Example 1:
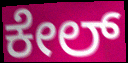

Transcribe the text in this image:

ಕೇಲ್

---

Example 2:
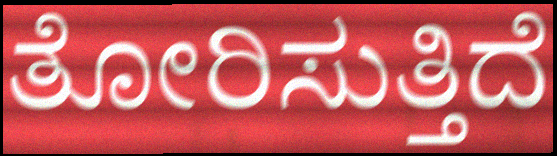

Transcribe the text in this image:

ತೋರಿಸುತ್ತಿದೆ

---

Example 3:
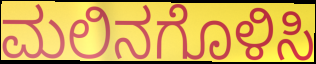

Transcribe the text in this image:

ಮಲಿನಗೊಳಿಸಿ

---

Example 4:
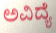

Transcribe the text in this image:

ಅವಿದ್ಯೆ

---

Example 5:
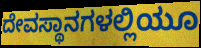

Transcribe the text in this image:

ದೇವಸ್ಥಾನಗಳಲ್ಲಿಯೂ